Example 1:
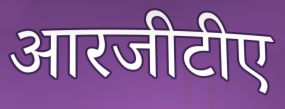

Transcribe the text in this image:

आरजीटीए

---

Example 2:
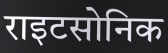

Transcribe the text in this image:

राइटसोनिक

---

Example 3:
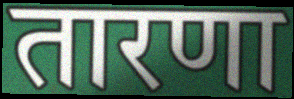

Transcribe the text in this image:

तारणा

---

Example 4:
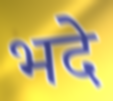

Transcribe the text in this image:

भदे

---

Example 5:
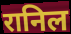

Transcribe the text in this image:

रानिल